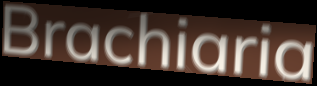
Brachiaria